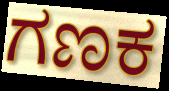
ಗಣಕ